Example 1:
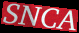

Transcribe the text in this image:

SNCA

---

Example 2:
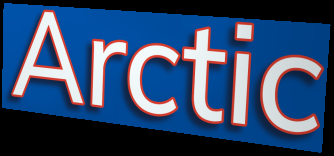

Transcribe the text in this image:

Arctic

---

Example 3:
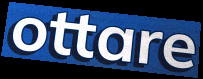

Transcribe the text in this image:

ottare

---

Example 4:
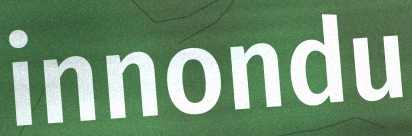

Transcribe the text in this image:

innondu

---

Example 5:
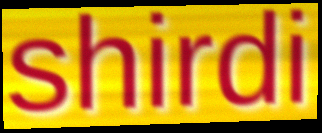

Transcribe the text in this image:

shirdi